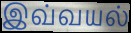
இவ்வயல்